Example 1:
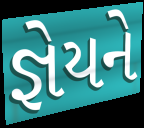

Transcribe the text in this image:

જ્ઞેયને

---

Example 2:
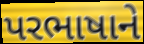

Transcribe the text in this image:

પરભાષાને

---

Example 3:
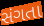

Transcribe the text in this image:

સંગતા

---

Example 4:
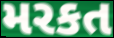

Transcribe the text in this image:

મરકત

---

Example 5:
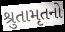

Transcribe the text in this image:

શ્રુતામૃતનો